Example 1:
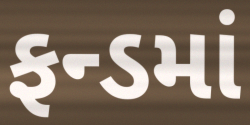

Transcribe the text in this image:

ફન્ડમાં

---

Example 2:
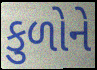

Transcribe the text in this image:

કુળોને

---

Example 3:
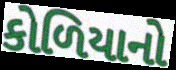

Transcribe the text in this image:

કોળિયાનો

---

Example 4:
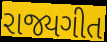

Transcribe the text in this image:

રાજ્યગીત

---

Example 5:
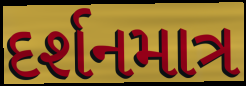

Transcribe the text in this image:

દર્શનમાત્ર